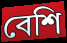
বেশি